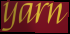
yarn